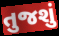
તુજશું